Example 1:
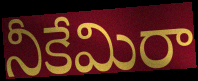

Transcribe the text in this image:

నీకేమిరా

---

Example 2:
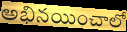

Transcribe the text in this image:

అభినయించాలో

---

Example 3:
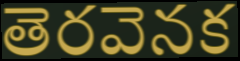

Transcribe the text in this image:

తెరవెనక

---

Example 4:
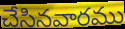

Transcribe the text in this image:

చేసినవారము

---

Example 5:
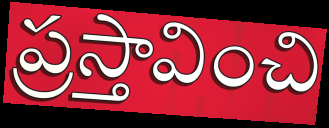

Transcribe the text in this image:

ప్రస్తావించి